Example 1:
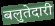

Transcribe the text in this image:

बलुतेदारी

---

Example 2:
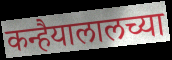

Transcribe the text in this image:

कन्हैयालालच्या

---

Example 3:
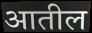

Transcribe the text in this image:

आतील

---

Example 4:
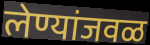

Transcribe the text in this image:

लेण्यांजवळ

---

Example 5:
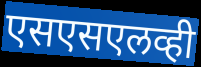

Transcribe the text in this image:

एसएसएलव्ही